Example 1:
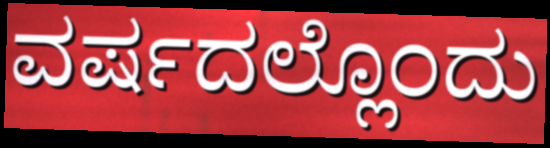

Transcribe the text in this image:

ವರ್ಷದಲ್ಲೊಂದು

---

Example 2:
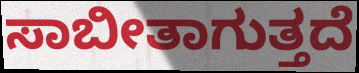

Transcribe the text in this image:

ಸಾಬೀತಾಗುತ್ತದೆ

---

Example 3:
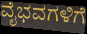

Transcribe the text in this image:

ವೈಭವಗಳಿಗೆ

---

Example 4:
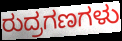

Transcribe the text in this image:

ರುದ್ರಗಣಗಳು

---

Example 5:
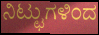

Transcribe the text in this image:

ನಿಟ್ಟುಗಳಿಂದ